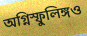
অগ্নিস্ফুলিঙ্গও